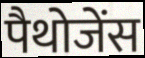
पैथोजेंस